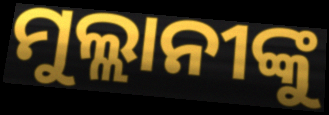
ମୁଲ୍ଲାନୀଙ୍କୁ